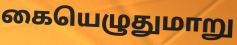
கையெழுதுமாறு